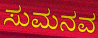
ಸುಮನವ